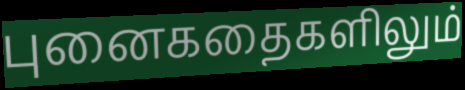
புனைகதைகளிலும்